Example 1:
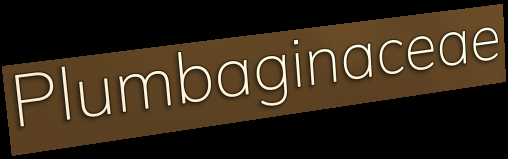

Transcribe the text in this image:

Plumbaginaceae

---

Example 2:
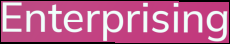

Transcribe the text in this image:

Enterprising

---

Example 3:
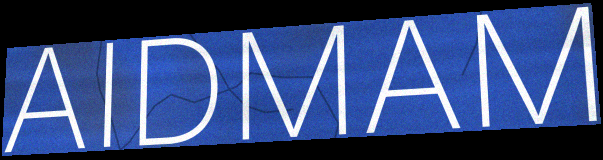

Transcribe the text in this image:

AIDMAM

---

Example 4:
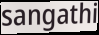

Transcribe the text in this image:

sangathi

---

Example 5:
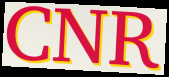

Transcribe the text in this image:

CNR